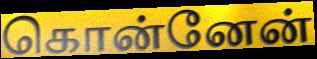
கொன்னேன்